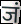
जं